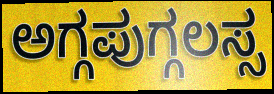
ಅಗ್ಗಪುಗ್ಗಲಸ್ಸ